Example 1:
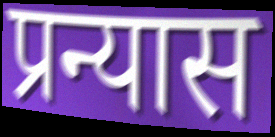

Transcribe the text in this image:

प्रन्यास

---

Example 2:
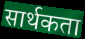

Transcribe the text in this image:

सार्थकता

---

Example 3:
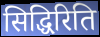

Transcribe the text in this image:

सिद्धिरिति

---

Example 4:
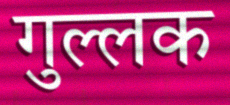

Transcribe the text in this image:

गुल्लक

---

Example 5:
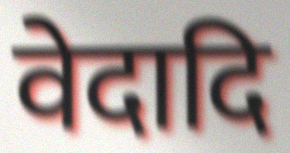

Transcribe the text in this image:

वेदादि